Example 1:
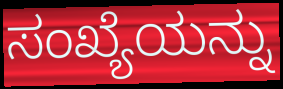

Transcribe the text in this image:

ಸಂಖ್ಯೆಯನ್ನು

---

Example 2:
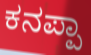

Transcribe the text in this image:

ಕನಪ್ಪಾ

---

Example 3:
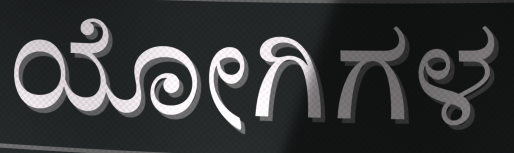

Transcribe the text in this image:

ಯೋಗಿಗಳ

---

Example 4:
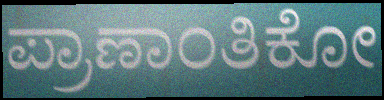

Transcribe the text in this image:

ಪ್ರಾಣಾಂತಿಕೋ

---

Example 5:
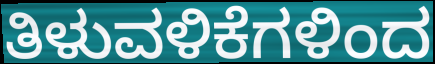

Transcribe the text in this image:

ತಿಳುವಳಿಕೆಗಳಿಂದ